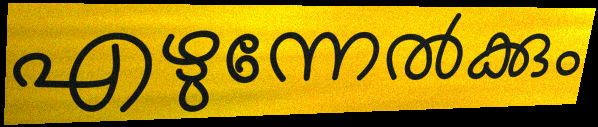
എഴുന്നേൽക്കും